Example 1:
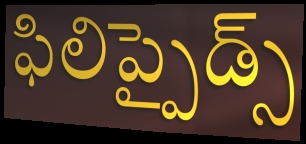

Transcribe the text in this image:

ఫిలిప్పైడ్స్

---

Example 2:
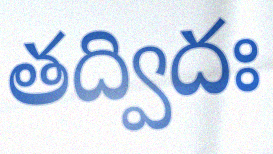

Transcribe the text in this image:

తద్విదః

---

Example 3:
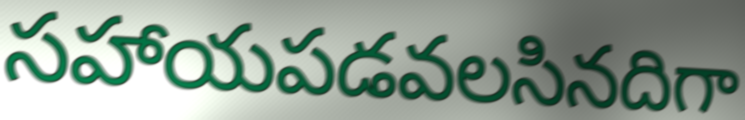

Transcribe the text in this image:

సహాయపడవలసినదిగా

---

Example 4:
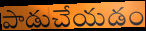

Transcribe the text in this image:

పాడుచేయడం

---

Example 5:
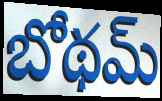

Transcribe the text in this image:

బోథమ్